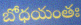
బోధయంతః